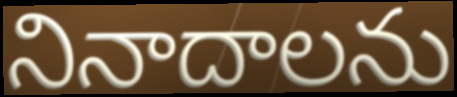
నినాదాలను